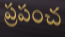
ప్రపంచ